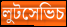
লুটসেভিচ